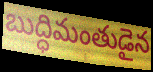
బుద్ధిమంతుడైన